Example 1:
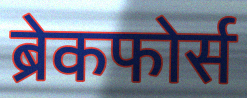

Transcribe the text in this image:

ब्रेकफोर्स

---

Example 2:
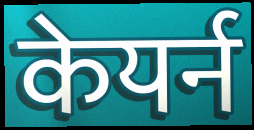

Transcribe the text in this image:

केयर्न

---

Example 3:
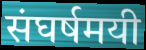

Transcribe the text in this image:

संघर्षमयी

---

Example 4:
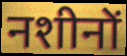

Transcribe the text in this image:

नशीनों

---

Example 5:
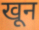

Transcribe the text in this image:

खून